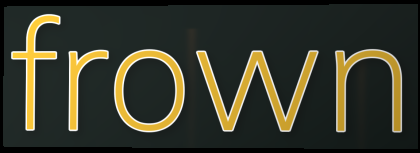
frown